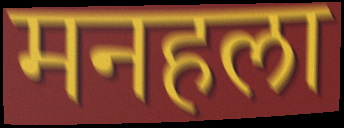
मनहला